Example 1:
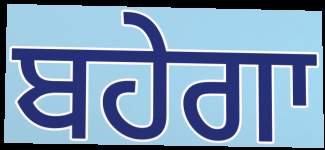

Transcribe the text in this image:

ਬਹੇਗਾ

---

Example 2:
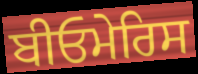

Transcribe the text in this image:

ਬੀਓਮੇਰਿਸ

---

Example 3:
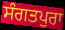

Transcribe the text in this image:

ਸੰਗਤਪੁਰਾ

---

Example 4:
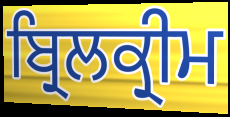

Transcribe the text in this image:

ਬ੍ਰਿਲਕ੍ਰੀਮ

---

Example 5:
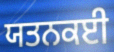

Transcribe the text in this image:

ਯਤਨਕਈ